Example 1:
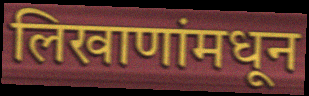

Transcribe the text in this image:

लिखाणांमधून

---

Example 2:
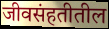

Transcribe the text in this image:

जीवसंहतीतील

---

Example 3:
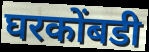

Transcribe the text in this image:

घरकोंबडी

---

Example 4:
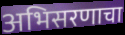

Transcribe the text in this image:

अभिसरणाचा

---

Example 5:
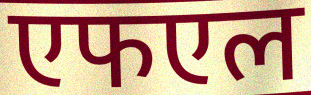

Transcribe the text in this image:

एफएल